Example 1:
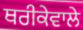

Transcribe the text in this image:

ਥਰੀਕੇਵਾਲੇ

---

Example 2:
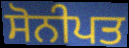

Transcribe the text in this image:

ਸੋਨੀਪਤ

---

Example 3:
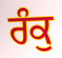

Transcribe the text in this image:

ਰੰਕੁ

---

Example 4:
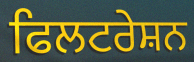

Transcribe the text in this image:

ਫਿਲਟਰੇਸ਼ਨ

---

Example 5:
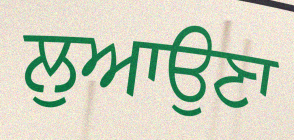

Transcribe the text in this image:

ਲੁਆਉਣਾ